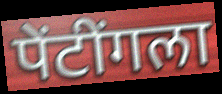
पेंटींगला